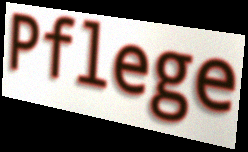
Pflege